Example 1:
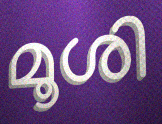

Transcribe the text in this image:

മൂശി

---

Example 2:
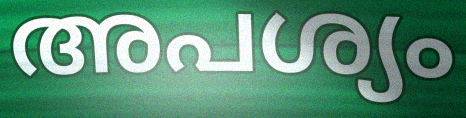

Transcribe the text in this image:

അപശ്യം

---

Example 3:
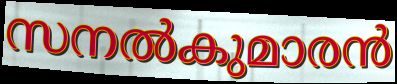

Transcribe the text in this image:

സനൽകുമാരൻ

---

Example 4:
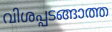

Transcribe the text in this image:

വിശപ്പടങ്ങാത്ത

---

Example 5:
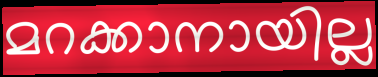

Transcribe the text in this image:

മറക്കാനായില്ല